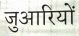
जुआरियों